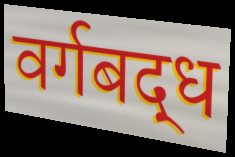
वर्गबद्ध